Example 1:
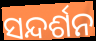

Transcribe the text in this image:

ସନ୍ଦର୍ଶନ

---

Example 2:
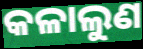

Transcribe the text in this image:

କଳାଲୁଣ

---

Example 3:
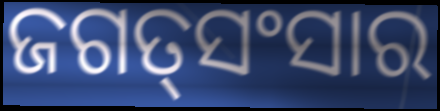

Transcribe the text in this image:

ଜଗତ୍‌ସଂସାର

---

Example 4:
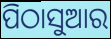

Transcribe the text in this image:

ପିଠାସୁଆର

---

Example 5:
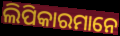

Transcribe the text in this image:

ଲିପିକାରମାନେ